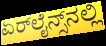
ಏರ್‌ಲೈನ್ಸ್‌ನಲ್ಲಿ